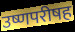
उष्णपरीषह